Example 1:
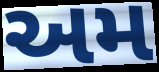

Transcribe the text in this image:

અમ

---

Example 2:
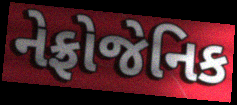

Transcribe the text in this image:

નેફ્રોજેનિક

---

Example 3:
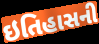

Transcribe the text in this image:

ઇતિહાસની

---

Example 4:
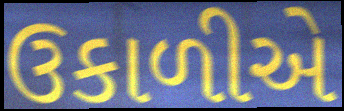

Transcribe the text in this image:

ઉકાળીએ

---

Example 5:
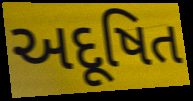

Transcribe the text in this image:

અદૂષિત